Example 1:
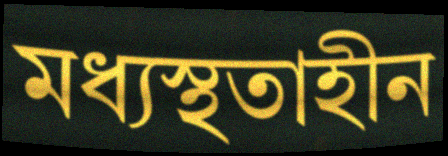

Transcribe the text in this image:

মধ্যস্থতাহীন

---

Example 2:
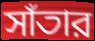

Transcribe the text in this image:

সাঁতার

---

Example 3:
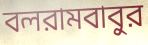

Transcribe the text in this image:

বলরামবাবুর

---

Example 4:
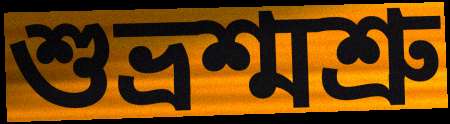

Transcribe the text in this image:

শুভ্রশ্মশ্রু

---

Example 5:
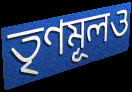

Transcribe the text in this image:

তৃণমূলও